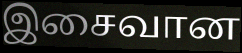
இசைவான